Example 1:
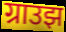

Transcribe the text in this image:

ग्राउझ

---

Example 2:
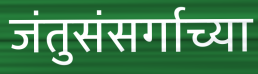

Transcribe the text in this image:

जंतुसंसर्गाच्या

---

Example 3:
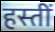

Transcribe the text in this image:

हस्तीं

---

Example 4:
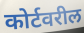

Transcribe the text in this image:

कोर्टवरील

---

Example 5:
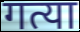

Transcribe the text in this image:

गत्या